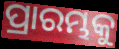
ପ୍ରାରମ୍ଭକୁ